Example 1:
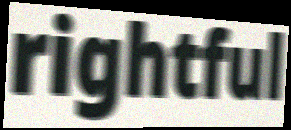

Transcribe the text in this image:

rightful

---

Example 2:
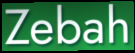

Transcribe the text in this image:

Zebah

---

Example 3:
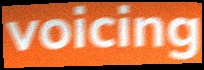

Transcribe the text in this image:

voicing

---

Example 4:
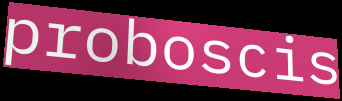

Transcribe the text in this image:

proboscis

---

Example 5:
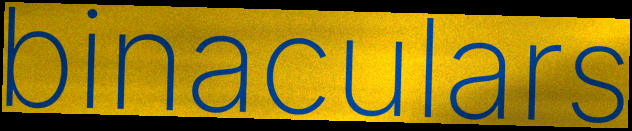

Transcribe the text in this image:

binaculars